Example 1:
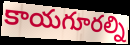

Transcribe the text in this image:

కాయగూరల్ని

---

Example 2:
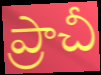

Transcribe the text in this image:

ప్రాచీ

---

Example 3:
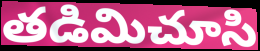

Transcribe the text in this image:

తడిమిచూసి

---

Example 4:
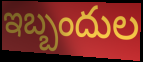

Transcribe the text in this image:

ఇబ్బందుల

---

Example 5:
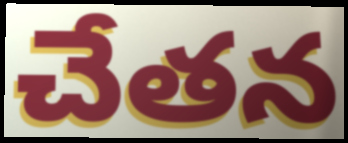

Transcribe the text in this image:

చేతన